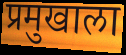
प्रमुखाला